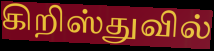
கிறிஸ்துவில்